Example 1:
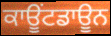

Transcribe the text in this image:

ਕਾਊਂਟਡਾਊਨ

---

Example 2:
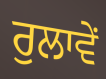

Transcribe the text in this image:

ਰੁਲਾਵੇਂ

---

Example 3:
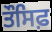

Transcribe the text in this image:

ਤੌਸਿਫ਼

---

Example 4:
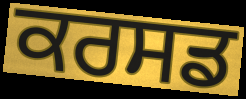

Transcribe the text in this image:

ਕਰਸਡ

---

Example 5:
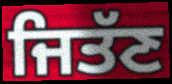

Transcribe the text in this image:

ਜਿਤੱਣ